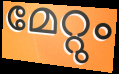
മേറ്റും